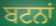
ਬਟਨਾਂ